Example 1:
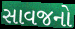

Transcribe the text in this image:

સાવજનો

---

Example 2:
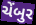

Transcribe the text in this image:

ચેંબુર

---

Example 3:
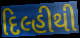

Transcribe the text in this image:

દિલ્હીથી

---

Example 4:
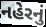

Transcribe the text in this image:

નહેરનું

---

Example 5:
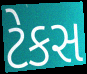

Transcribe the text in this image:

ટેકસ